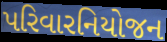
પરિવારનિયોજન